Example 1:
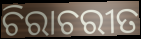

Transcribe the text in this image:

ଚିରାଚରୀତ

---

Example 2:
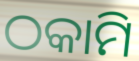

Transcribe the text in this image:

ଠକାମି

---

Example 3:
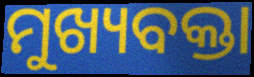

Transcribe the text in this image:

ମୁଖ୍ୟବକ୍ତା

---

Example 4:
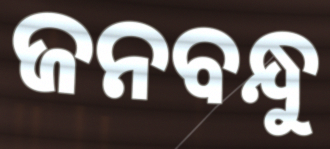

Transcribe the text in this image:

ଜନବନ୍ଧୁ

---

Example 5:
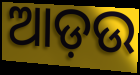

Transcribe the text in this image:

ଆଡ଼ଉ